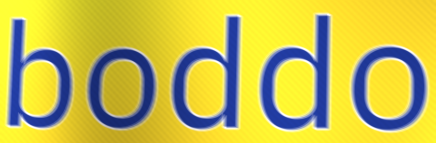
boddo